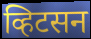
व्हिटसन